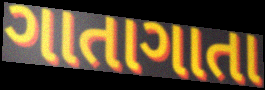
ગાતાગાતા